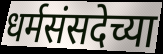
धर्मसंसदेच्या